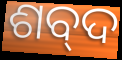
ଶବ୍‍ଦ